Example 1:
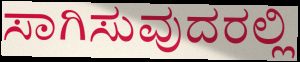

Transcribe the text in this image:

ಸಾಗಿಸುವುದರಲ್ಲಿ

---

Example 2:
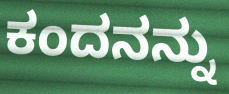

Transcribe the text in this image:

ಕಂದನನ್ನು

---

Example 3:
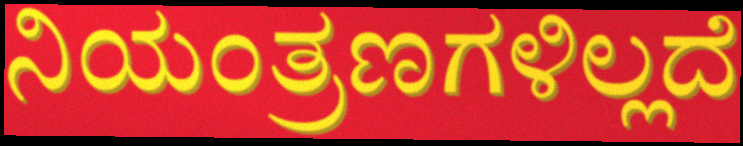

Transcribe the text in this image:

ನಿಯಂತ್ರಣಗಳಿಲ್ಲದೆ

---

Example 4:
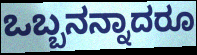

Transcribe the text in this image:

ಒಬ್ಬನನ್ನಾದರೂ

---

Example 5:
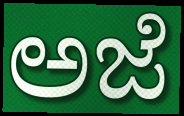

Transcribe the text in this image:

ಅಜೆ